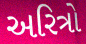
અરિત્રો